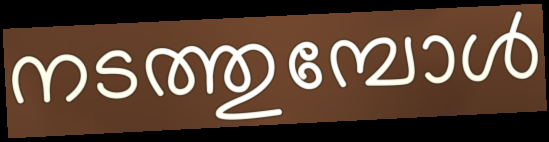
നടത്തുമ്പോൾ